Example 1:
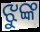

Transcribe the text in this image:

ଝୁଙ୍କ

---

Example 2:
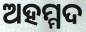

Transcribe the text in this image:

ଅହମ୍ମଦ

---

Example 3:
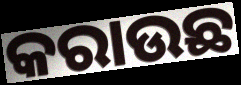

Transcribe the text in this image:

କରାଉଛ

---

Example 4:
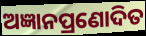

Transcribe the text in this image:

ଅଜ୍ଞାନପ୍ରଣୋଦିତ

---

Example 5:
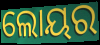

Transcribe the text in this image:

ଲୋୟର